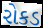
રોકડ